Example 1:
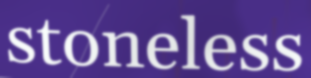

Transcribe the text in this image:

stoneless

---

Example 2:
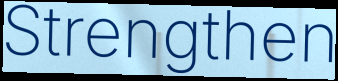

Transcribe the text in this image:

Strengthen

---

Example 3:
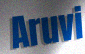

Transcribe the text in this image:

Aruvi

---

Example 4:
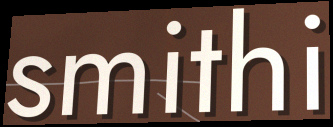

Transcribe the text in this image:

smithi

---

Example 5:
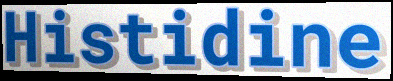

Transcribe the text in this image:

Histidine